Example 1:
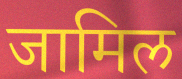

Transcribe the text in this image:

जामिल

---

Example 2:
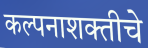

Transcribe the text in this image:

कल्पनाशक्तीचे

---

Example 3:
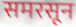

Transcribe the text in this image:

समरसून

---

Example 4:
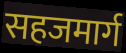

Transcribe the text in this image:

सहजमार्ग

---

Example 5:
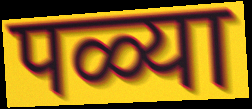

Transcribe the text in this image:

पळ्या